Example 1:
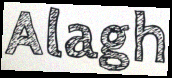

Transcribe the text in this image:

Alagh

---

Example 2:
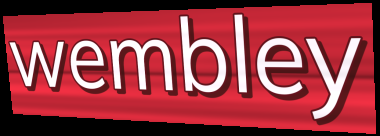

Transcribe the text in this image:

wembley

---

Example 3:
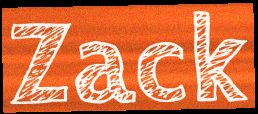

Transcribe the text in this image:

Zack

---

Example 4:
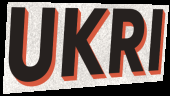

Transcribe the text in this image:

UKRI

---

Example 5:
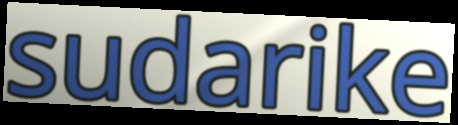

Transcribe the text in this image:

sudarike